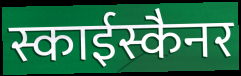
स्काईस्कैनर